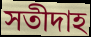
সতীদাহ